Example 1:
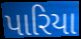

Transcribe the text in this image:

પારિયા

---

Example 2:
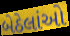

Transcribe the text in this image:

બેઠેલાંઓ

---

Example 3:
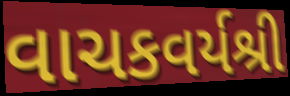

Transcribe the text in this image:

વાચકવર્યશ્રી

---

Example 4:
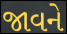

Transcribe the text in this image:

જાવને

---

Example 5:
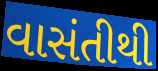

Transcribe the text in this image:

વાસંતીથી